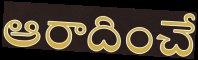
ఆరాదించే